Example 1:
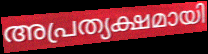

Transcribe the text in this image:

അപ്രത്യക്ഷമായി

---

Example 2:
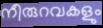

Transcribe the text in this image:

നീരുറവകളും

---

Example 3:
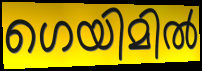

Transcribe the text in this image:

ഗെയിമിൽ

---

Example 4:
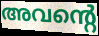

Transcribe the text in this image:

അവന്റെ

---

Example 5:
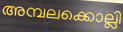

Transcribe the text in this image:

അമ്പലക്കൊല്ലി